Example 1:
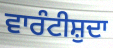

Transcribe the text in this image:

ਵਾਰੰਟੀਸ਼ੁਦਾ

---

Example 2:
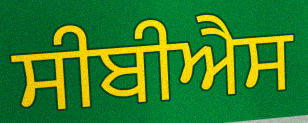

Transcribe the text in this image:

ਸੀਬੀਐਸ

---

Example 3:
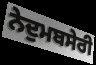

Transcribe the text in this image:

ਨੇਦੁਮਬਸੇਰੀ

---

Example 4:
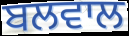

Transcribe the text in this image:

ਬਲਵਾਲ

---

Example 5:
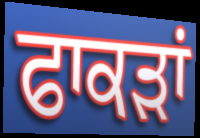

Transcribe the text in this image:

ਫਾਕੜਾਂ